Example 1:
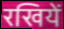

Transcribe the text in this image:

रखियें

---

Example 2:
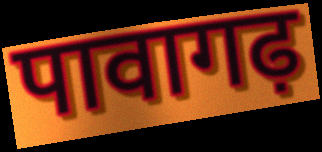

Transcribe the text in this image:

पावागढ़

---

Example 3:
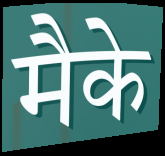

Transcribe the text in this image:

मैके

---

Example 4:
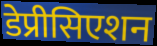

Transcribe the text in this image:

डेप्रीसिएशन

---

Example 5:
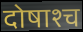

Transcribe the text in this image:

दोषाश्च